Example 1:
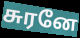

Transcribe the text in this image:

சுரனே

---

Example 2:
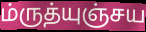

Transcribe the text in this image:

ம்ருத்யுஞ்சய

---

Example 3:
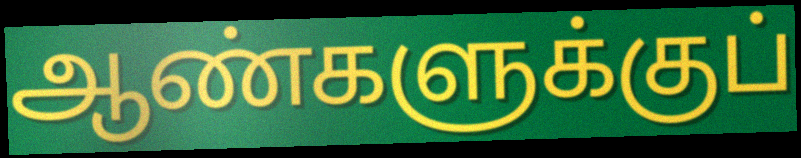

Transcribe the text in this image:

ஆண்களுக்குப்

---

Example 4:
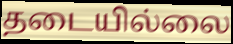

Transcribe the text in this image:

தடையில்லை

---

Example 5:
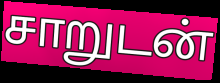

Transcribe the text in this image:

சாறுடன்